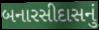
બનારસીદાસનું